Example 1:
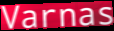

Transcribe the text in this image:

Varnas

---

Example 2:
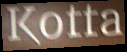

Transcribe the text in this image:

Kotta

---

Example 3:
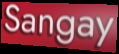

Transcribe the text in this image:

Sangay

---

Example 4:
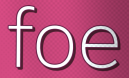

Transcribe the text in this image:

foe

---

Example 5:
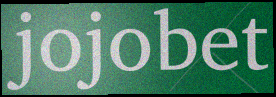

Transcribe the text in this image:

jojobet